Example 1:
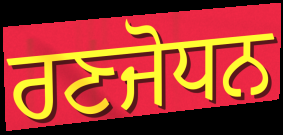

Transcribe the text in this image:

ਰਣਜੋਧਨ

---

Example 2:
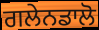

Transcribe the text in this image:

ਗਲੇਨਡਾਲੋ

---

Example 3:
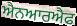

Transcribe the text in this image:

ਐਨਆਰਐਫ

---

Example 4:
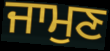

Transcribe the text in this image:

ਜਾਮੁਣ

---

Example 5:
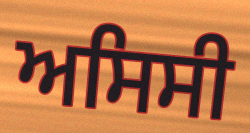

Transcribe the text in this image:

ਅਸਿਸੀ